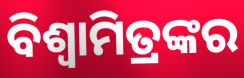
ବିଶ୍ବାମିତ୍ରଙ୍କର